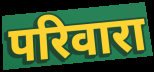
परिवारा